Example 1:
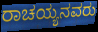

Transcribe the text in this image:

ರಾಚಯ್ಯನವರು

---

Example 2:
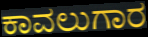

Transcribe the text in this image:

ಕಾವಲುಗಾರ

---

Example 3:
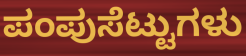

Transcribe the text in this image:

ಪಂಪುಸೆಟ್ಟುಗಳು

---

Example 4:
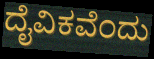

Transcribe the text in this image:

ದೈವಿಕವೆಂದು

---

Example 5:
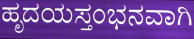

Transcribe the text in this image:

ಹೃದಯಸ್ತಂಭನವಾಗಿ